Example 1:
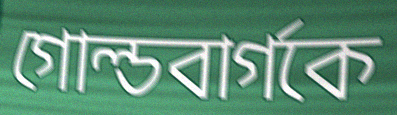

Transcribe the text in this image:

গোল্ডবার্গকে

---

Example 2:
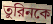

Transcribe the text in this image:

তুরিনকে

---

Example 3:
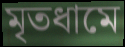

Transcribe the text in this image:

মৃতধামে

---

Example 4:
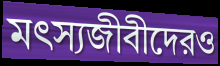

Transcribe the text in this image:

মৎস্যজীবীদেরও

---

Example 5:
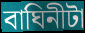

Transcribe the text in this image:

বাঘিনীটা